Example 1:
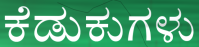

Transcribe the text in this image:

ಕೆಡುಕುಗಳು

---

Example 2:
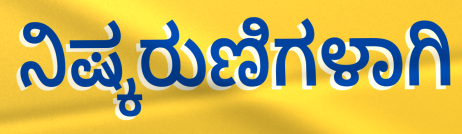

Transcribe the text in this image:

ನಿಷ್ಕರುಣಿಗಳಾಗಿ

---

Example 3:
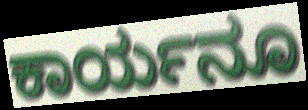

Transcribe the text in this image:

ಕಾರ್ಯನೂ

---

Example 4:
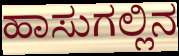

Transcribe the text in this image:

ಹಾಸುಗಲ್ಲಿನ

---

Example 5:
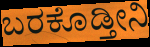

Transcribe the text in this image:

ಬರಕೊಡ್ತೀನಿ